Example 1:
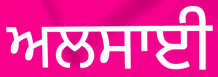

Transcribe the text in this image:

ਅਲਸਾਈ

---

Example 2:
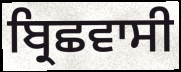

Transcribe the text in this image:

ਬ੍ਰਿਛਵਾਸੀ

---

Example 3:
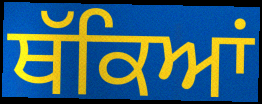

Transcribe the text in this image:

ਥੱਕਿਆਂ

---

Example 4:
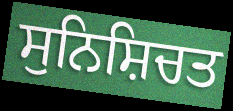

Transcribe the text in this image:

ਸੁਨਿਸ਼ਿਚਤ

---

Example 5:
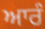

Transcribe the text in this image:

ਆਰੰ